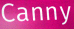
Canny